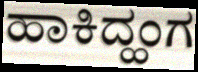
ಹಾಕಿದ್ಹಂಗ